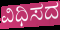
ವಿಧಿಸದ